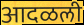
आदळली